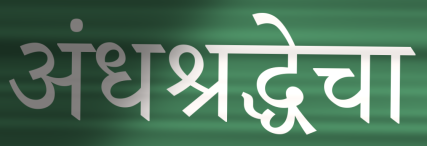
अंधश्रद्धेचा